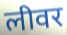
लीवर